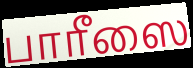
பாரீஸை